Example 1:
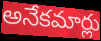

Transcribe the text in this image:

అనేకమార్లు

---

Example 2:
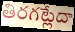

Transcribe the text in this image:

తిరగట్లేదా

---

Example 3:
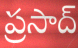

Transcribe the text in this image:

ప్రసాద్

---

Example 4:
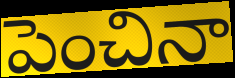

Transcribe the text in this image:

పెంచినా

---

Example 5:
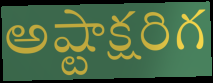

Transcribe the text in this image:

అష్టాక్షరిగ